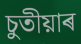
চুতীয়াৰ